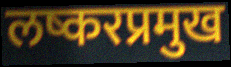
लष्करप्रमुख